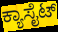
ಕ್ಯಾಸೈಟ್